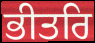
ਭੀਤਰਿ